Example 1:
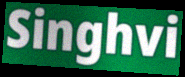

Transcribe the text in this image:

Singhvi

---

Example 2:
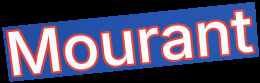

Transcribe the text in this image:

Mourant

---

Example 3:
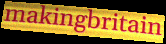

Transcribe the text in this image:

makingbritain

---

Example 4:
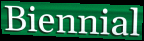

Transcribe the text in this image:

Biennial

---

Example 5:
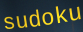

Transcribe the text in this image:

sudoku